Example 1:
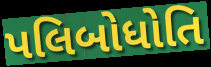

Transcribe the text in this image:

પલિબોધોતિ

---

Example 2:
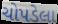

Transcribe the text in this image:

ચોપડેલા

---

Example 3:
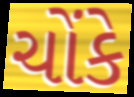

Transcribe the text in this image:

ચોંકે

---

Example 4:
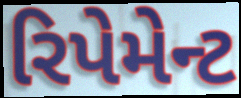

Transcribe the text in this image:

રિપેમેન્ટ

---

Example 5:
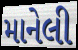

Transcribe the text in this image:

માનેલી